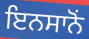
ਇਨਸਾਨੋਂ